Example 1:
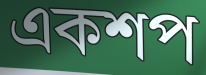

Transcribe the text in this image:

একশপ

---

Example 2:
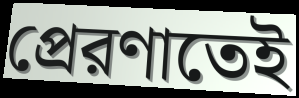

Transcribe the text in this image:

প্রেরণাতেই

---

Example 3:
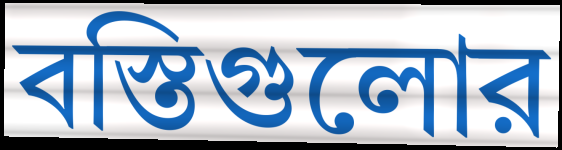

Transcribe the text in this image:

বস্তিগুলোর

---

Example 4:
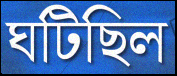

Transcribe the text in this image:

ঘটিছিল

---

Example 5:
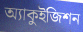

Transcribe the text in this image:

অ্যাকুইজিশন